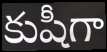
కుషీగా